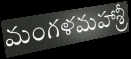
మంగళమహాశ్రీ